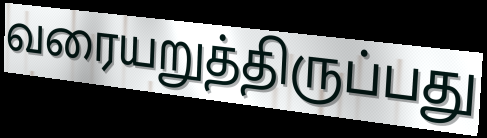
வரையறுத்திருப்பது